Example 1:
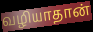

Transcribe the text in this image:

வழியாதான்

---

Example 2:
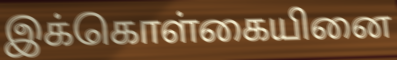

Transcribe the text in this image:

இக்கொள்கையினை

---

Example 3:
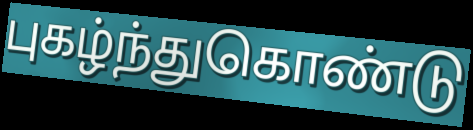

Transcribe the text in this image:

புகழ்ந்துகொண்டு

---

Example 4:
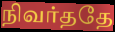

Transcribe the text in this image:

நிவர்ததே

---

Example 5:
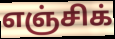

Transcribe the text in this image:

எஞ்சிக்